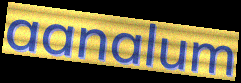
aanalum